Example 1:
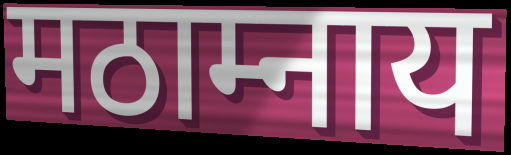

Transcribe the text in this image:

मठाम्नाय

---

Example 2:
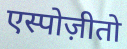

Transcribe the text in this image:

एस्पोज़ीतो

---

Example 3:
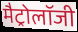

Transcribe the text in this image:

मैट्रोलॉजी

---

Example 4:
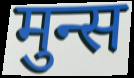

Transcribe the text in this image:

मुन्स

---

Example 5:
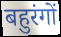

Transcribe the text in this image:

बहुरंगों